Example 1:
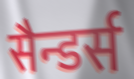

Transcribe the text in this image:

सैन्डर्स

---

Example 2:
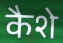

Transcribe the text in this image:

कैशे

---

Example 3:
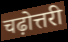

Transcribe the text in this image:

चढ़ोत्तरी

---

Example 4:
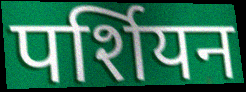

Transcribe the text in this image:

पर्शियन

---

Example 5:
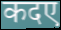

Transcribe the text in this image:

कदए